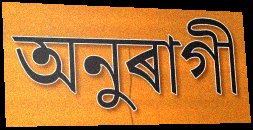
অনুৰাগী